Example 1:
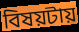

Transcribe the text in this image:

বিষয়টায়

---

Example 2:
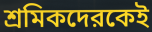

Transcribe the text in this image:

শ্রমিকদেরকেই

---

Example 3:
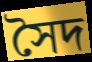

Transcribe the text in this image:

সৈদ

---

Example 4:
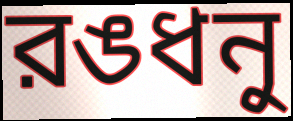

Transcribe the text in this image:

রঙধনু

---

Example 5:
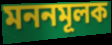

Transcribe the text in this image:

মননমূলক